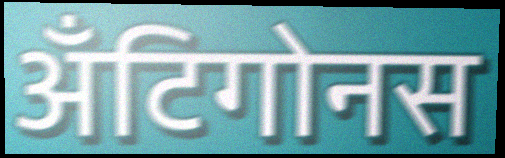
अँटिगोनस